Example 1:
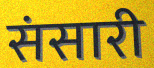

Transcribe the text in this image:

संसारी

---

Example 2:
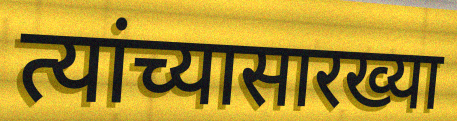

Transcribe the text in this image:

त्यांच्यासारख्या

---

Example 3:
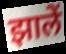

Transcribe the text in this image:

झालें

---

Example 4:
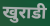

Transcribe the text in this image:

खुराडी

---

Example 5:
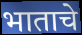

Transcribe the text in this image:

भाताचे